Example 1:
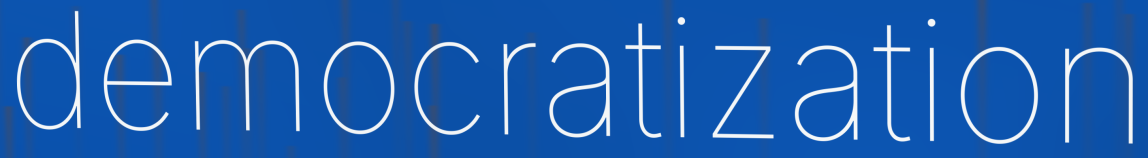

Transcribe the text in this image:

democratization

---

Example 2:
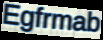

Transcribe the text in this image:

Egfrmab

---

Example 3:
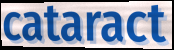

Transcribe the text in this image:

cataract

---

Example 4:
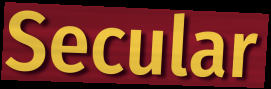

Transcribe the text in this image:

Secular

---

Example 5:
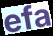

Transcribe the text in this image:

efa